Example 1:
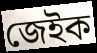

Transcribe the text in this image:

জেইক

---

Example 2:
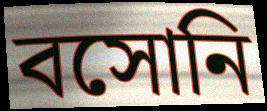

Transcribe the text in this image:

বসোনি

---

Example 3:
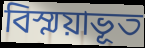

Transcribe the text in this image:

বিস্ময়াভূত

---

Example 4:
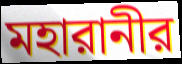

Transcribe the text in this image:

মহারানীর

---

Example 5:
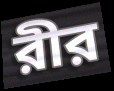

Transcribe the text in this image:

রীর